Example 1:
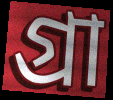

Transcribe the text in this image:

গ্রা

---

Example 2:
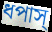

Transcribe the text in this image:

ধপাস্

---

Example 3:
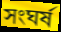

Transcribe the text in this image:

সংঘর্ষ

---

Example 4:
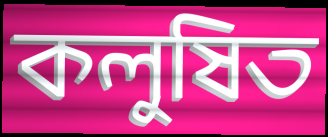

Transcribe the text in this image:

কলুষিত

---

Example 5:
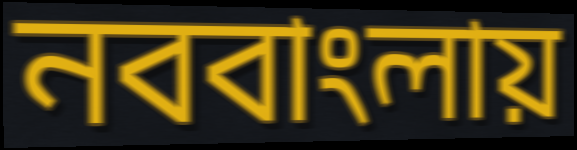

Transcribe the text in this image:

নববাংলায়